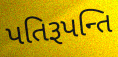
પતિરૂપન્તિ